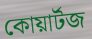
কোয়ার্টজ